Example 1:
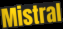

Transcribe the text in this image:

Mistral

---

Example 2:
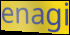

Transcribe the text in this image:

enagi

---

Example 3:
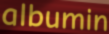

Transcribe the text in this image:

albumin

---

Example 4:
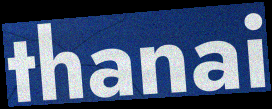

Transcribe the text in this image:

thanai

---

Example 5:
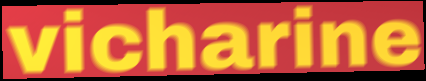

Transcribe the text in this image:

vicharine